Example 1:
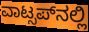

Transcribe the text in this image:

ವಾಟ್ಸಪ್‍ನಲ್ಲಿ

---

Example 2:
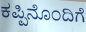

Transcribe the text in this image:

ಕಪ್ಪಿನೊಂದಿಗೆ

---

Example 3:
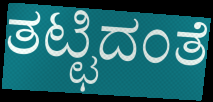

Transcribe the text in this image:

ತಟ್ಟಿದಂತೆ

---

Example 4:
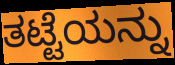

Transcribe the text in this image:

ತಟ್ಟೆಯನ್ನು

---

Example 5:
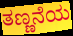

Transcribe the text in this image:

ತಣ್ಣನೆಯ